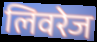
लिवरेज